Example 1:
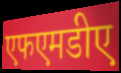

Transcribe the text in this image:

एफएमडीए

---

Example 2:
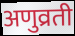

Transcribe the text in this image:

अणुव्रती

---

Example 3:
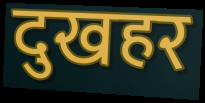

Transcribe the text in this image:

दुखहर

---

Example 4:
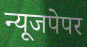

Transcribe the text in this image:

न्यूजपेपर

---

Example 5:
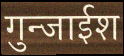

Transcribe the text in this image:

गुन्जाईश